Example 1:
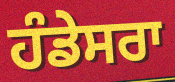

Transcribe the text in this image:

ਹੰਡੇਸਰਾ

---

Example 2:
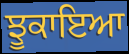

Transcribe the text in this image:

ਝੂਕਾਇਆ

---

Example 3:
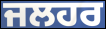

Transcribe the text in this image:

ਜਲਹਰ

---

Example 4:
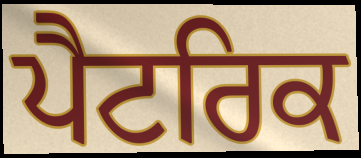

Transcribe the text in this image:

ਪੈਟਰਿਕ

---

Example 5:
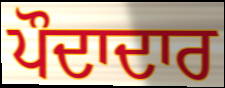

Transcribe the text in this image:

ਪੌਦਾਦਾਰ